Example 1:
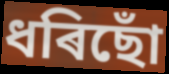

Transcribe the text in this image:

ধৰিছোঁ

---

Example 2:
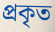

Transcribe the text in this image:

প্ৰকৃত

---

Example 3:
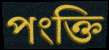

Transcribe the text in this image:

পংক্তি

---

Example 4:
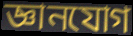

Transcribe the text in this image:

জ্ঞানযোগ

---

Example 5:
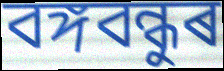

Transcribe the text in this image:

বঙ্গবন্ধুৰ